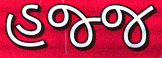
હજ્જ